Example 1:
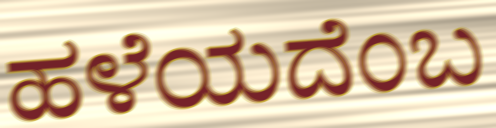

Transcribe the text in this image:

ಹಳೆಯದೆಂಬ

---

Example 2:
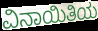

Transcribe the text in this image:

ವಿನಾಯಿತಿಯ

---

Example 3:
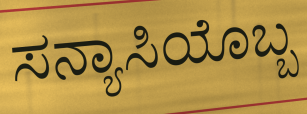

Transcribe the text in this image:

ಸನ್ಯಾಸಿಯೊಬ್ಬ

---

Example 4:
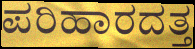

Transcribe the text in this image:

ಪರಿಹಾರದತ್ತ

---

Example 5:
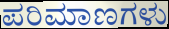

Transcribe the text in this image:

ಪರಿಮಾಣಗಳು